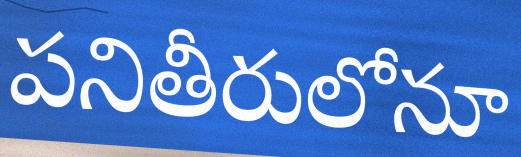
పనితీరులోనూ